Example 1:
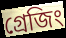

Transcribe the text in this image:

গ্রেজিং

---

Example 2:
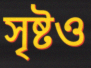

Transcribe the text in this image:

সৃষ্টও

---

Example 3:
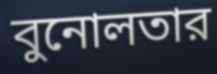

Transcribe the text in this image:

বুনোলতার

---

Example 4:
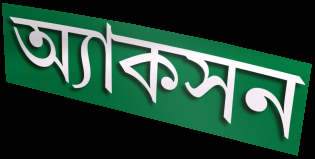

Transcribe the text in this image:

অ্যাকসন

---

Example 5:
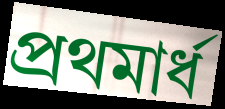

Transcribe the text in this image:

প্রথমার্ধ